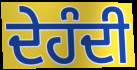
ਦੇਹੰਦੀ